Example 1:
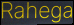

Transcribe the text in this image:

Rahega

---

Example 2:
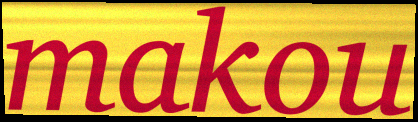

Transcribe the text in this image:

makou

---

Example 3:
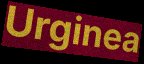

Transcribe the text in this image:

Urginea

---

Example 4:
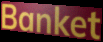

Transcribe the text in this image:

Banket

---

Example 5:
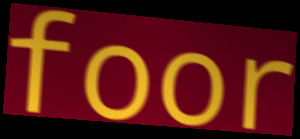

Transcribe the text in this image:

foor